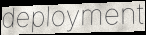
deployment